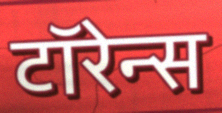
टॉरेन्स